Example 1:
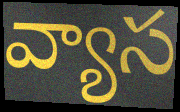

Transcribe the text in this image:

వ్యాస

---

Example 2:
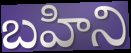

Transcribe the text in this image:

బహిని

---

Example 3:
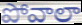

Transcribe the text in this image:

పోవాలా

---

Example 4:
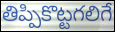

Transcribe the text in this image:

తిప్పికొట్టగలిగే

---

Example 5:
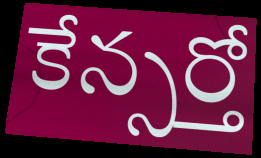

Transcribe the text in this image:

కేన్సర్తో